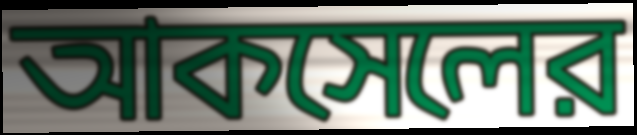
আকসেলের